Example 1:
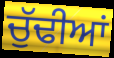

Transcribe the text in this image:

ਚੁੱਢੀਆਂ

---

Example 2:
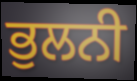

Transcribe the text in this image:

ਭੁਲਨੀ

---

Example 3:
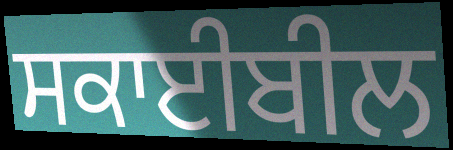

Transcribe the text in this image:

ਸਕਾਈਬੀਲ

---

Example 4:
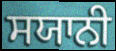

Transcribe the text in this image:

ਸਯਾਨੀ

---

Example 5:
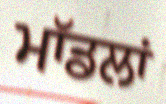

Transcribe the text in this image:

ਮਾੱਡਲਾਂ